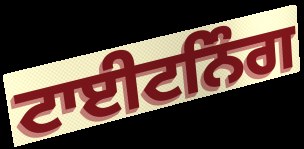
ਟਾਈਟਨਿੰਗ